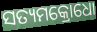
ସତ୍ୟମକ୍ରୋଧୋ